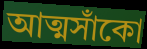
আত্মসাঁকো